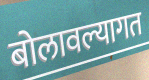
बोलावल्यागत